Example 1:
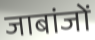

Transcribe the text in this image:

जाबांजों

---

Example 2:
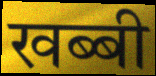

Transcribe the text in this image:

खब्बी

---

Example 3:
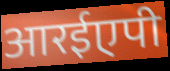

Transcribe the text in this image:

आरईएपी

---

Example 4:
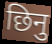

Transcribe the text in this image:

छिनु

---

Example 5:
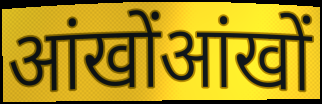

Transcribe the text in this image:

आंखोंआंखों